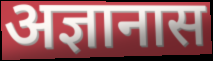
अज्ञानास